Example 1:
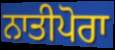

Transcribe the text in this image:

ਨਾਤੀਪੋਰਾ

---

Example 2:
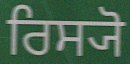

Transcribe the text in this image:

ਰਿਸ੍ਯੋ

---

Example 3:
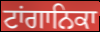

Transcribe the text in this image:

ਟਾਂਗਾਨਿਕਾ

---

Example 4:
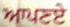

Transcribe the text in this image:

ਆਪਣਏ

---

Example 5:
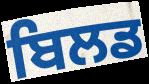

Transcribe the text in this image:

ਬਿਲਡ